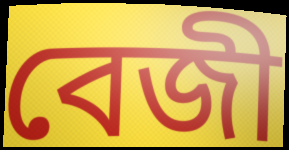
বেজী